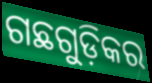
ଗଛଗୁଡ଼ିକର